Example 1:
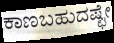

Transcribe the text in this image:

ಕಾಣಬಹುದಷ್ಟೇ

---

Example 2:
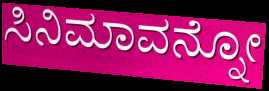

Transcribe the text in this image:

ಸಿನಿಮಾವನ್ನೋ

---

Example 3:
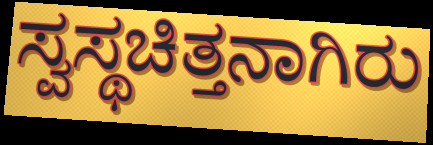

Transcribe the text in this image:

ಸ್ವಸ್ಥಚಿತ್ತನಾಗಿರು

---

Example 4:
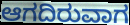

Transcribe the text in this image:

ಆಗದಿರುವಾಗ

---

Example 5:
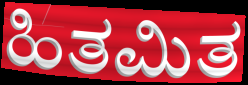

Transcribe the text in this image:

ಹಿತಮಿತ